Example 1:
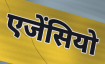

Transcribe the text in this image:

एजेंसियो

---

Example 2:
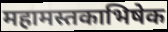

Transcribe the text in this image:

महामस्तकाभिषेक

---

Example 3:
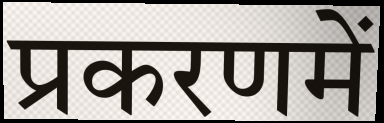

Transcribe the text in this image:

प्रकरणमें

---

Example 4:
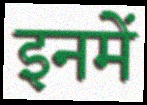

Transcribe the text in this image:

इनमें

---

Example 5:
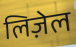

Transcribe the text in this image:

लिज़ेल